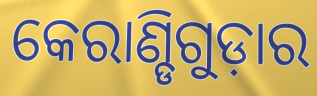
କେରାଣ୍ଡିଗୁଡ଼ାର